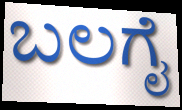
ಬಲಗೈ